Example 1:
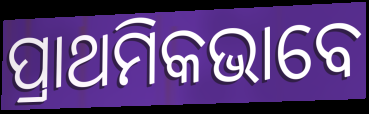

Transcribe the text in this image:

ପ୍ରାଥମିକଭାବେ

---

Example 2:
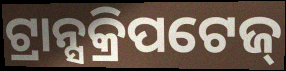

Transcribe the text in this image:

ଟ୍ରାନ୍ସକ୍ରିପଟେଜ୍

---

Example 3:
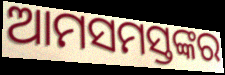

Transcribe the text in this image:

ଆମସମସ୍ତଙ୍କର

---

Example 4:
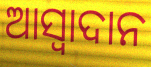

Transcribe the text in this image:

ଆସ୍ୱାଦାନ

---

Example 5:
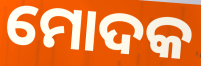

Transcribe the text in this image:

ମୋଦକ